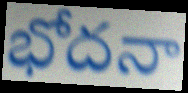
భోదనా